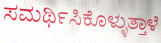
ಸಮರ್ಥಿಸಿಕೊಳ್ಳುತ್ತಾಳೆ